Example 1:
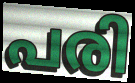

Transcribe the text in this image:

പരി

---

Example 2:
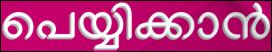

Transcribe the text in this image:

പെയ്യിക്കാൻ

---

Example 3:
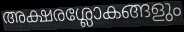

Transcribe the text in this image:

അക്ഷരശ്ലോകങ്ങളും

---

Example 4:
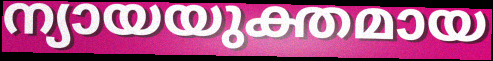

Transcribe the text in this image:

ന്യായയുക്തമായ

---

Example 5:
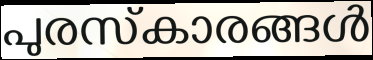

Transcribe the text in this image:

പുരസ്‌കാരങ്ങൾ